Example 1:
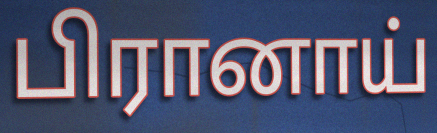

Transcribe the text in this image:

பிரானாய்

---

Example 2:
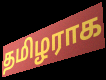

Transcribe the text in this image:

தமிழராக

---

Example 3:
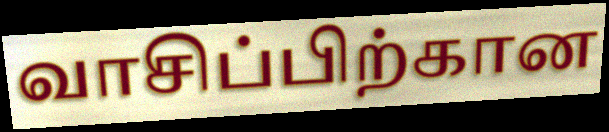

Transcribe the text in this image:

வாசிப்பிற்கான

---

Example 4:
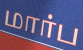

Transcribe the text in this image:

மார்ப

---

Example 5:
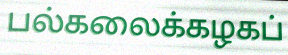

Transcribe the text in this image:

பல்கலைக்கழகப்